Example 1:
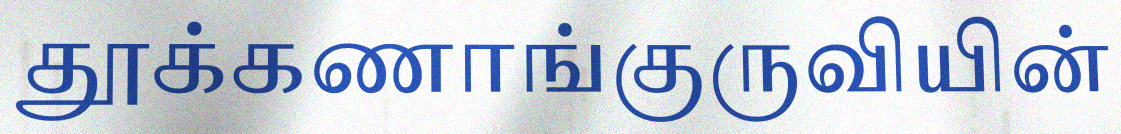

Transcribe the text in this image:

தூக்கணாங்குருவியின்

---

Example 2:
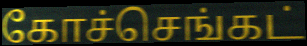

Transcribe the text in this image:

கோச்செங்கட்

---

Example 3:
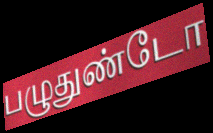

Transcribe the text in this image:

பழுதுண்டோ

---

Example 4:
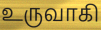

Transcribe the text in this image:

உருவாகி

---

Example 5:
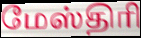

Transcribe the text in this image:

மேஸ்திரி